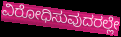
ವಿರೋಧಿಸುವುದರಲ್ಲೇ